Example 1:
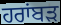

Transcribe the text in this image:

ਹਰਾਂਬੜ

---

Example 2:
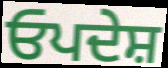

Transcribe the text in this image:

ਓਪਦੇਸ਼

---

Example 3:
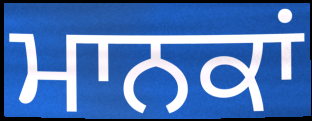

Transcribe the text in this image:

ਮਾਨਕਾਂ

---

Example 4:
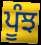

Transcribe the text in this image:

ਪੂੰਝ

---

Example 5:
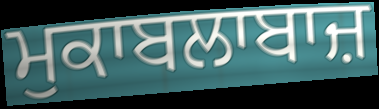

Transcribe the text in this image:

ਮੁਕਾਬਲਾਬਾਜ਼